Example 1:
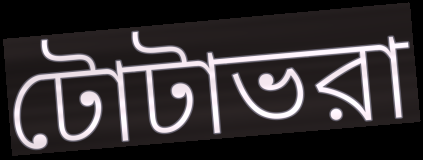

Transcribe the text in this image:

টোটাভরা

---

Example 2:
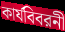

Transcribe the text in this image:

কার্যবিবরনী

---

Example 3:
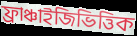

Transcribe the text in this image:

ফ্রাঞ্চাইজিভিত্তিক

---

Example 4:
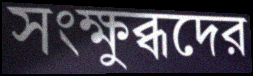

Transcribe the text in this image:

সংক্ষুব্ধদের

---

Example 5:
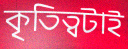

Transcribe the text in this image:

কৃতিত্বটাই